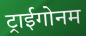
ट्राईगोनम